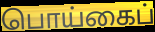
பொய்கைப்